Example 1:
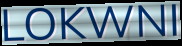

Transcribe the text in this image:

LOKWNI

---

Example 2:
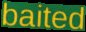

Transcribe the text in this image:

baited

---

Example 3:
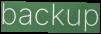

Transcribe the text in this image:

backup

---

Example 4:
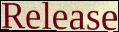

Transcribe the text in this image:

Release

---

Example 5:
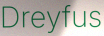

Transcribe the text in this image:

Dreyfus